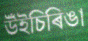
উঁইচিৰিঙা